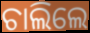
ଚାଲିଲେ